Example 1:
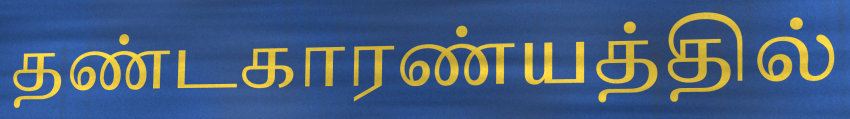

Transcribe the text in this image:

தண்டகாரண்யத்தில்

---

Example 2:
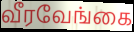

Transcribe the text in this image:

வீரவேங்கை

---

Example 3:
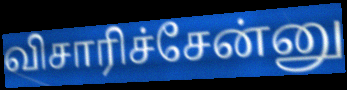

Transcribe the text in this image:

விசாரிச்சேன்னு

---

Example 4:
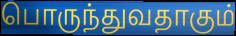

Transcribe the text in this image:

பொருந்துவதாகும்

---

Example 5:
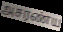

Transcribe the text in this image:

அசரண்ய